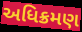
અધિક્રમણ